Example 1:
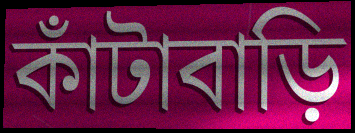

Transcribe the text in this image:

কাঁটাবাড়ি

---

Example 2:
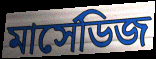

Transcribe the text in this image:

মার্সেডিজ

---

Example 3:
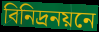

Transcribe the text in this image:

বিনিদ্রনয়নে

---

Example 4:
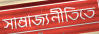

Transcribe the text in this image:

সাম্রাজ্যনীতিতে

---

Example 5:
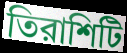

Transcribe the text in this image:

তিরাশিটি